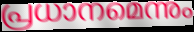
പ്രധാനമെന്നും